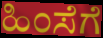
ಹಿಂಸೆಗೆ